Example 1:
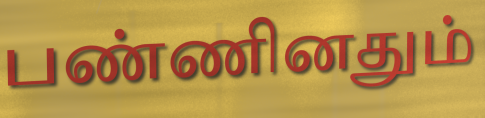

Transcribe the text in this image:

பண்ணினதும்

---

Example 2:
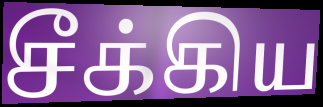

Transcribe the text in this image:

சீக்கிய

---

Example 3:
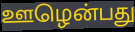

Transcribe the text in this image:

ஊழென்பது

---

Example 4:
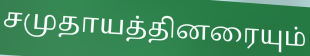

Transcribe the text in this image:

சமுதாயத்தினரையும்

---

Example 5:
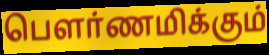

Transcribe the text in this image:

பௌர்ணமிக்கும்